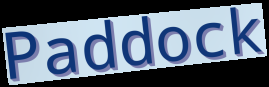
Paddock